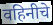
वहिनीचे